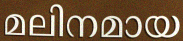
മലിനമായ